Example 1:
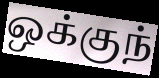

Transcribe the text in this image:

ஒக்குந்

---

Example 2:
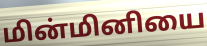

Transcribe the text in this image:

மின்மினியை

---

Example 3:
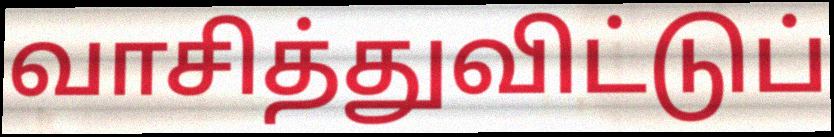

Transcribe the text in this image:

வாசித்துவிட்டுப்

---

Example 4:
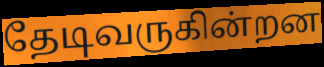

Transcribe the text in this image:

தேடிவருகின்றன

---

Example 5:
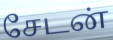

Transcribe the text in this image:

சேடன்